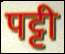
पट्टी